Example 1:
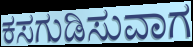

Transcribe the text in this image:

ಕಸಗುಡಿಸುವಾಗ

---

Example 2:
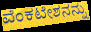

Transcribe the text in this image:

ವೆಂಕಟೇಶನನ್ನು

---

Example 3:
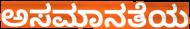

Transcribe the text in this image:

ಅಸಮಾನತೆಯ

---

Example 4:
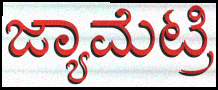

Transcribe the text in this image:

ಜ್ಯಾಮೆಟ್ರಿ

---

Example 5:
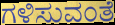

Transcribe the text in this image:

ಗಳಿಸುವಂತೆ